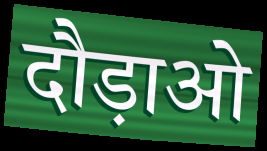
दौड़ाओ